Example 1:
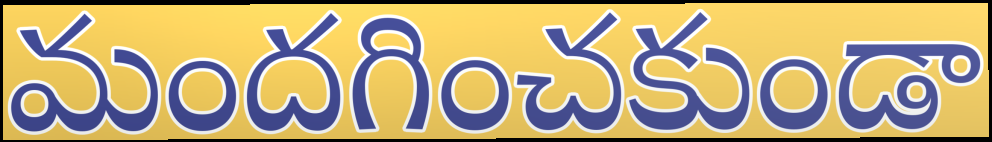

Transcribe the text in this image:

మందగించకుండా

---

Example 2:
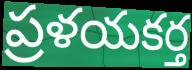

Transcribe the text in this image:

ప్రళయకర్త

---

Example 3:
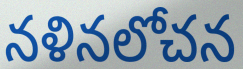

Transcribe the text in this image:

నళినలోచన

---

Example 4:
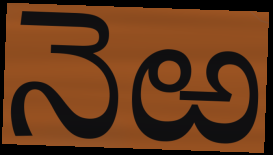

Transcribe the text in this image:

నెఱ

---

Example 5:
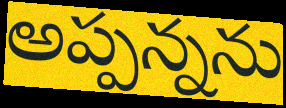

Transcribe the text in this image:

అప్పన్నను